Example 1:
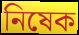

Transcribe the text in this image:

নিষেক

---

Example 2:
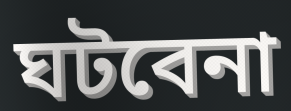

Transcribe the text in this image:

ঘটবেনা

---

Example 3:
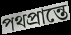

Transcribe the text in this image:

পথপ্রান্তে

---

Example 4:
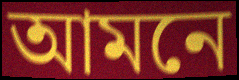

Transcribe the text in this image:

আমনে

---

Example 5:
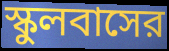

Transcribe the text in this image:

স্কুলবাসের